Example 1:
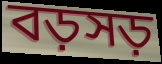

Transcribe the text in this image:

বড়সড়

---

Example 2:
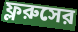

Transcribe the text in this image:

ফ্লরুসের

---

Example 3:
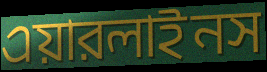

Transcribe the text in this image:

এয়ারলাইনস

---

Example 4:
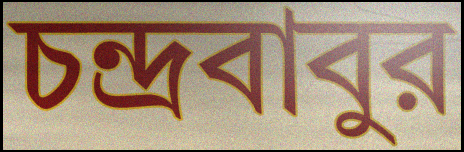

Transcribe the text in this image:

চন্দ্রবাবুর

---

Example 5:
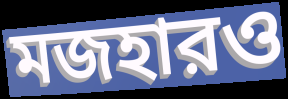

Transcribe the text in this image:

মজহারও